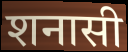
शनासी